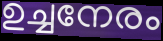
ഉച്ചനേരം